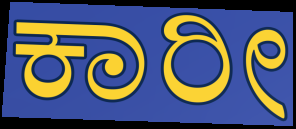
ಕಾರೀ